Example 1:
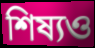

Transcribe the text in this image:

শিষ্যও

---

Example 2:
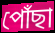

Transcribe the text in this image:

পোঁছা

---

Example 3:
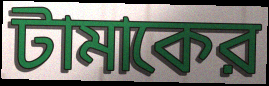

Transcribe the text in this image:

টামাকের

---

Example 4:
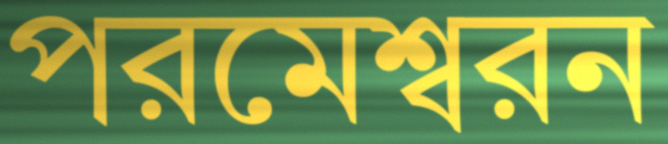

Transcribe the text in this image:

পরমেশ্বরন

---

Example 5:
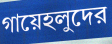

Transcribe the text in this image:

গায়েহলুদের